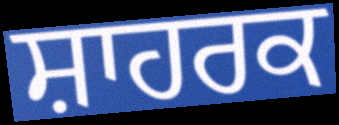
ਸ਼ਾਹਰਕ